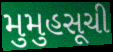
મુમુહસૂચી